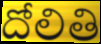
దోలితి